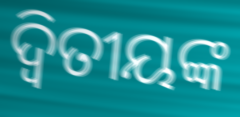
ଦ୍ଵିତୀୟଙ୍କ